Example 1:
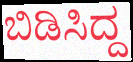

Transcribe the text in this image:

ಬಿಡಿಸಿದ್ದ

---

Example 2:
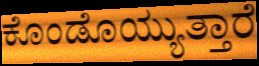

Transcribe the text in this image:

ಕೊಂಡೊಯ್ಯುತ್ತಾರೆ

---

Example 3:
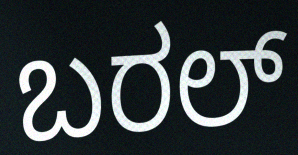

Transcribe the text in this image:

ಬರಲ್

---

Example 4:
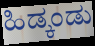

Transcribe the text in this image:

ಹಿಡ್ಕಂಡು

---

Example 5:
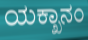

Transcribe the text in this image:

ಯಕ್ಖಾನಂ